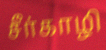
சீர்காழி